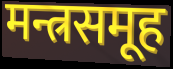
मन्त्रसमूह